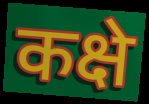
कक्षे